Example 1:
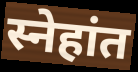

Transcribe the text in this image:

स्नेहांत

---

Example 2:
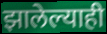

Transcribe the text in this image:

झालेल्याही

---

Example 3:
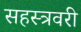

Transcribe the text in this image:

सहस्त्रवरी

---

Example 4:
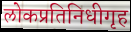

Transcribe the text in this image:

लोकप्रतिनिधीगृह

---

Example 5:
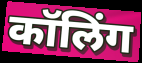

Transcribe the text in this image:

कॉलिंग